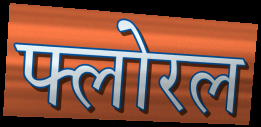
फ्लोरल